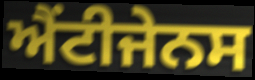
ਐਂਟੀਜੇਨਸ